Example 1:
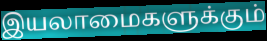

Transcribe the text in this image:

இயலாமைகளுக்கும்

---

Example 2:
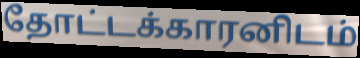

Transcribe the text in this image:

தோட்டக்காரனிடம்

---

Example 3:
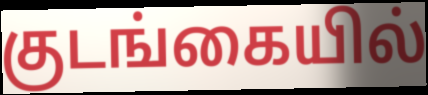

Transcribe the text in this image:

குடங்கையில்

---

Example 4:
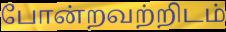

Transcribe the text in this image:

போன்றவற்றிடம்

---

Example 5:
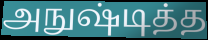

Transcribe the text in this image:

அநுஷ்டித்த